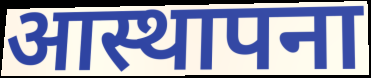
आस्थापना